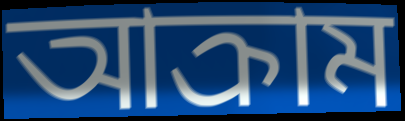
আক্ৰাম